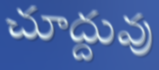
చూద్దువు